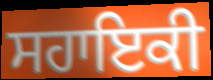
ਸਹਾਇਕੀ